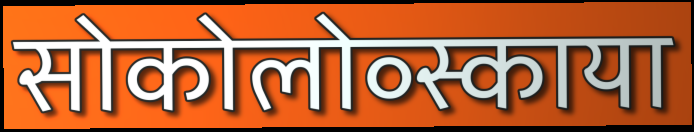
सोकोलोव्स्काया